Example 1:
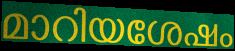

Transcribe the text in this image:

മാറിയശേഷം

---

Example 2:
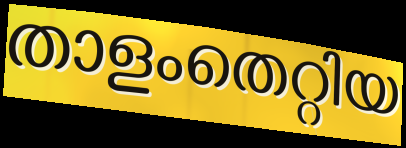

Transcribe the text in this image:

താളംതെറ്റിയ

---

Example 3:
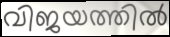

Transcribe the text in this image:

വിജയത്തിൽ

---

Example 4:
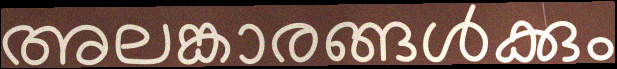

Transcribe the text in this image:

അലങ്കാരങ്ങൾക്കും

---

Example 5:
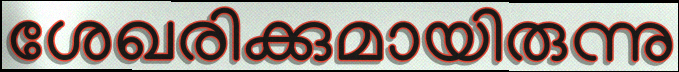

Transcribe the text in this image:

ശേഖരിക്കുമായിരുന്നു